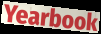
Yearbook